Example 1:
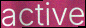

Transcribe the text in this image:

active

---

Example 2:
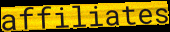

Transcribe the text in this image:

affiliates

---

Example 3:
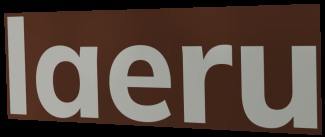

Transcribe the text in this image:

laeru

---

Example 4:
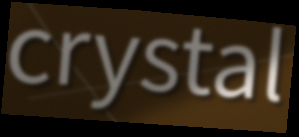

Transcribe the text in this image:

crystal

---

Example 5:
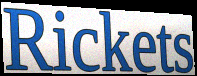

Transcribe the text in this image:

Rickets